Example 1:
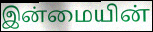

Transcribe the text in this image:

இன்மையின்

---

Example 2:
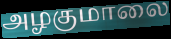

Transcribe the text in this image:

அழகுமாலை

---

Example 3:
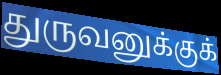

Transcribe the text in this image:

துருவனுக்குக்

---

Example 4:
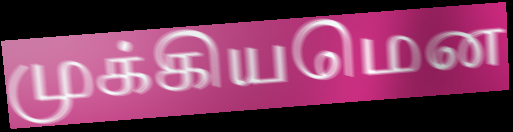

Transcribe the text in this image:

முக்கியமென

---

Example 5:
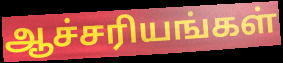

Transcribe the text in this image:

ஆச்சரியங்கள்